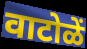
वाटोळें